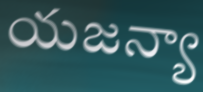
యజన్యా